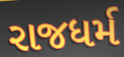
રાજધર્મ